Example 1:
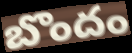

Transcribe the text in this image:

బొందం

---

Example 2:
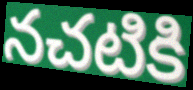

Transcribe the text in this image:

నచటికి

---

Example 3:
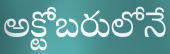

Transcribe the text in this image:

అక్టోబరులోనే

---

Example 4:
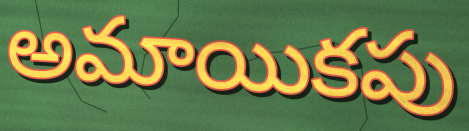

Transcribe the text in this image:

అమాయికపు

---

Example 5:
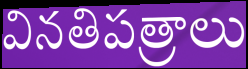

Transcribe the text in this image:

వినతిపత్రాలు